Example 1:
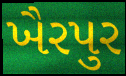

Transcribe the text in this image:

ખૈરપુર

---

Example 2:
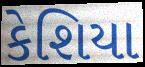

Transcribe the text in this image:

કેશિયા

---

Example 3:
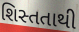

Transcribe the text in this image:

શિસ્તતાથી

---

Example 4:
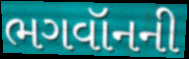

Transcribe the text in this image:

ભગવૉનની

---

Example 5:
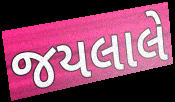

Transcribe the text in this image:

જયલાલે